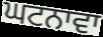
ਘਟਨਾਵਾ